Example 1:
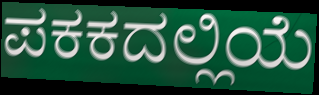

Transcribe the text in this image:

ಪಕಕದಲ್ಲಿಯೆ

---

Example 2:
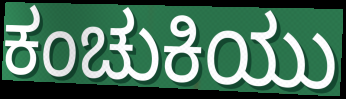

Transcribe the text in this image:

ಕಂಚುಕಿಯು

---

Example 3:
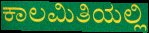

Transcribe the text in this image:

ಕಾಲಮಿತಿಯಲ್ಲಿ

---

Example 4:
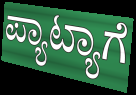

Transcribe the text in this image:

ಪ್ಯಾಟ್ಯಾಗೆ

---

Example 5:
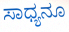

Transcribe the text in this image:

ಸಾಧ್ಯನೂ